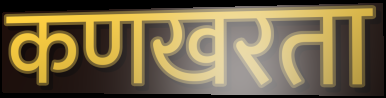
कणखरता